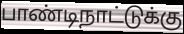
பாண்டிநாட்டுக்கு